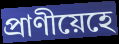
প্ৰাণীয়েহে